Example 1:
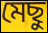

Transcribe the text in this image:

মেছু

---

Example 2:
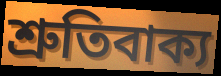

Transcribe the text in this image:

শ্রুতিবাক্য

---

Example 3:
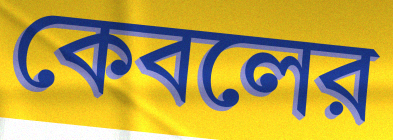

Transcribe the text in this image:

কেবলের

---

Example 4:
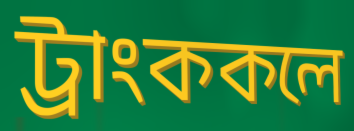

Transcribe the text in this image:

ট্রাংককলে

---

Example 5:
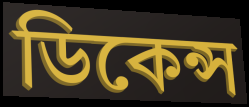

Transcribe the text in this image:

ডিকেন্স